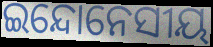
ଇନ୍ଦୋନେସୀୟ